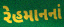
રેહમાનનાં